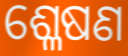
ଶ୍ଳେଷଣ